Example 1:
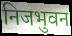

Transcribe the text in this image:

निजभुवन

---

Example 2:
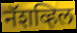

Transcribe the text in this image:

नॅशव्हिल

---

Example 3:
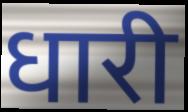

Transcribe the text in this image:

धारी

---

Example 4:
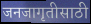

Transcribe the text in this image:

जनजागृतीसाठी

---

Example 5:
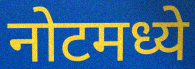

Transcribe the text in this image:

नोटमध्ये